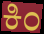
ಕಿಂ